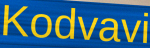
Kodvavi